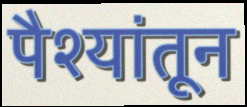
पैश्यांतून